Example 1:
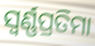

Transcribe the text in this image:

ସ୍ୱର୍ଣ୍ଣପ୍ରତିମା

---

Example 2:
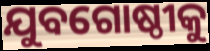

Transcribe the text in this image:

ଯୁବଗୋଷ୍ଠୀକୁ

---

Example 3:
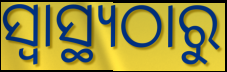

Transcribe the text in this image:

ସ୍ବାସ୍ଥ୍ୟଠାରୁ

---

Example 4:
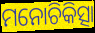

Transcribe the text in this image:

ମନୋଚିକିତ୍ସା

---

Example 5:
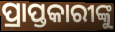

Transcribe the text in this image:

ପ୍ରାପ୍ତକାରୀଙ୍କୁ